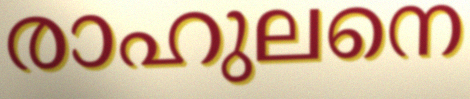
രാഹുലനെ